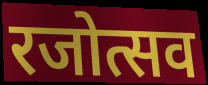
रजोत्सव